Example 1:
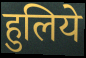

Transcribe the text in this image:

हुलिये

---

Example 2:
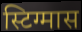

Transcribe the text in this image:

स्टिग्मास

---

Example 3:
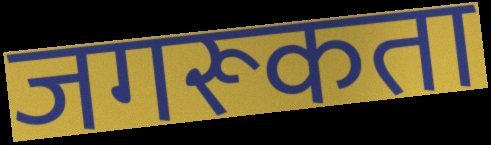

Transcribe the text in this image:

जगरूकता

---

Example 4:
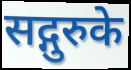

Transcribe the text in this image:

सद्गुरुके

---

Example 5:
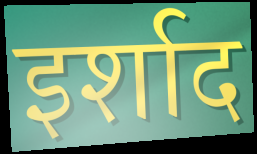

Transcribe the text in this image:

इर्शाद